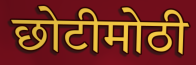
छोटीमोठी